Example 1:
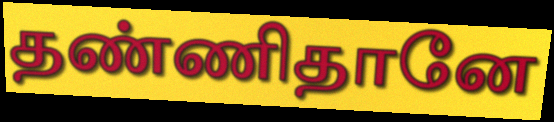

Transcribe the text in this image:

தண்ணிதானே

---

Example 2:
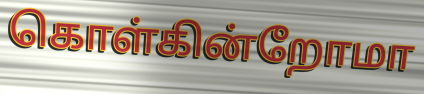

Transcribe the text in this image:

கொள்கின்றோமா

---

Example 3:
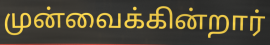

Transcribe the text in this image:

முன்வைக்கின்றார்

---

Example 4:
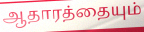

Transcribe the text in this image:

ஆதாரத்தையும்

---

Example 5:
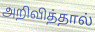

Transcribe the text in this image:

அறிவித்தால்